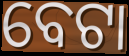
ବେଟା